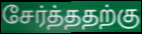
சேர்த்ததற்கு